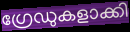
ഗ്രേഡുകളാക്കി